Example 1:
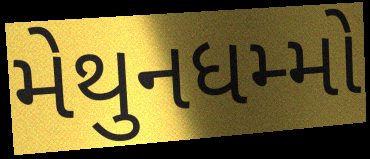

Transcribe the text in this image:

મેથુનધમ્મો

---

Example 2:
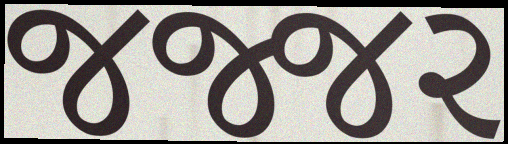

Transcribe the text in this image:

જજ્જર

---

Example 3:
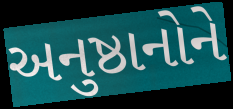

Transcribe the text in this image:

અનુષ્ઠાનોને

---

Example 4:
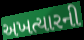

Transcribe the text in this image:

અખત્યારની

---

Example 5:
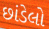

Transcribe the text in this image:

છાંડેલો